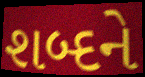
શબ્દને